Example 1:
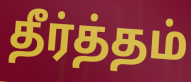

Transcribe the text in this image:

தீர்த்தம்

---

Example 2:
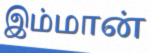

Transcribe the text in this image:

இம்மான்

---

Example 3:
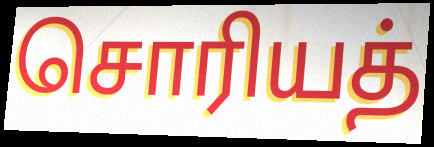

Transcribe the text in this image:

சொரியத்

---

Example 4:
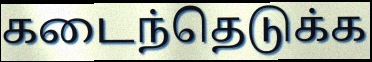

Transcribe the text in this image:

கடைந்தெடுக்க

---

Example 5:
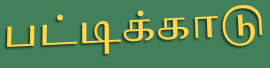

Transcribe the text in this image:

பட்டிக்காடு